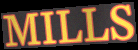
MILLS